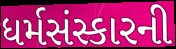
ધર્મસંસ્કારની